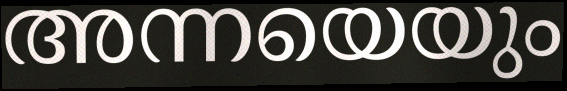
അന്നയെയും